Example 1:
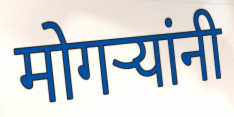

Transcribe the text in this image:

मोगऱ्यांनी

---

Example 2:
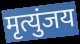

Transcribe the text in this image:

मृत्युंजय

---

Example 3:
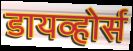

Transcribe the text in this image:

डायव्होर्स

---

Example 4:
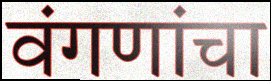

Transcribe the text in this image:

वंगणांचा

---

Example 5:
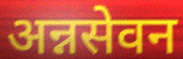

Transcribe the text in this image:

अन्नसेवन